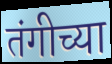
तंगीच्या